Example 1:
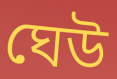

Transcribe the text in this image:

ঘেউ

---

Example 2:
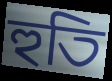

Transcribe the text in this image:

হুতি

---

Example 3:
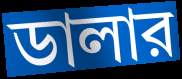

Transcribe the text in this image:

ডালার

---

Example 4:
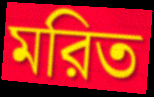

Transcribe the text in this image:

মরিত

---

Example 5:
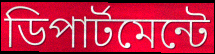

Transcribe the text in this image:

ডিপার্টমেন্টে